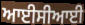
ਆਈਸੀਆਈ